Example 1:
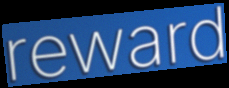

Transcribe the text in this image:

reward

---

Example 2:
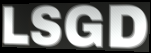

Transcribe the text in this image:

LSGD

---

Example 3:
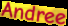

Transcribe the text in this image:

Andree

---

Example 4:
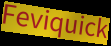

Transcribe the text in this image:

Feviquick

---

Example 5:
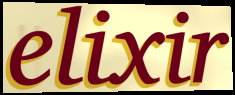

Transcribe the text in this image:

elixir